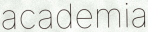
academia